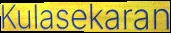
Kulasekaran